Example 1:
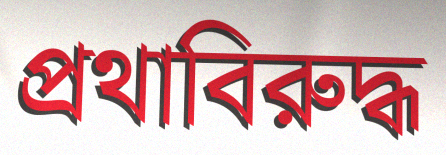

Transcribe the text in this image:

প্রথাবিরুদ্ধ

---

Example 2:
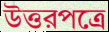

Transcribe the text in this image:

উত্তরপত্রে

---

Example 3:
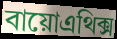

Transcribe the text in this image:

বায়োএথিক্স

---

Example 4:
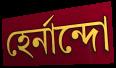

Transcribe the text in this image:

হের্নান্দো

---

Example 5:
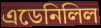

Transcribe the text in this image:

এডেনিলিল